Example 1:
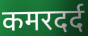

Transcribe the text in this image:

कमरदर्द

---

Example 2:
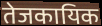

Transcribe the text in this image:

तेजकायिक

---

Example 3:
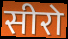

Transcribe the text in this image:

सीरो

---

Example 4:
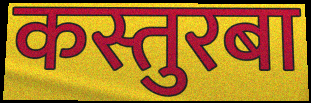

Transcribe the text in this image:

कस्तुरबा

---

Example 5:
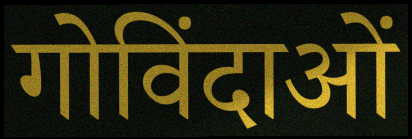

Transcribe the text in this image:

गोविंदाओं